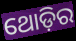
ଥୋଡ଼ିର